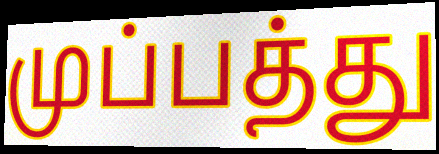
முப்பத்து